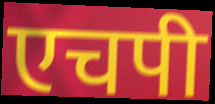
एचपी